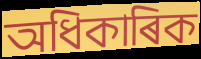
অধিকাৰিক